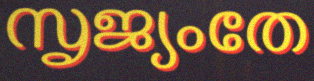
സൃജ്യംതേ